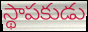
స్థాపకుడు